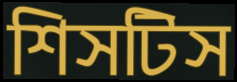
শিসটিস